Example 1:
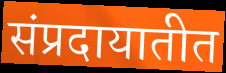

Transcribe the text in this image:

संप्रदायातीत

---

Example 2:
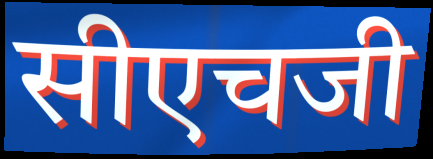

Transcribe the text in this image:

सीएचजी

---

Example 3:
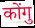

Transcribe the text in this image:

कोंगु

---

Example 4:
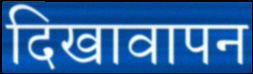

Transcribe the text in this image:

दिखावापन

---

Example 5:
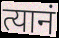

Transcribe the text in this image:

त्यानं